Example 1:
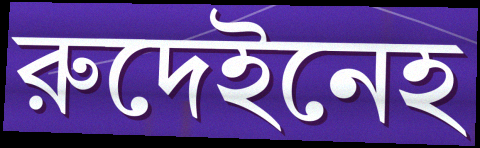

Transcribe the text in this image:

রুদেইনেহ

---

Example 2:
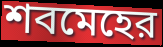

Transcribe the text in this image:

শবমেহের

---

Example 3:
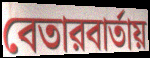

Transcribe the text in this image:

বেতারবার্তায়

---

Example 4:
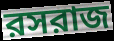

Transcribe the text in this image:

রসরাজ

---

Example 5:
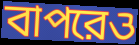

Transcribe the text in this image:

বাপরেও